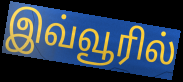
இவ்வூரில்